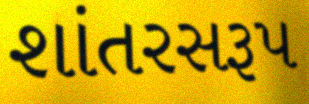
શાંતરસરૂપ